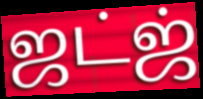
ஜட்ஜ்